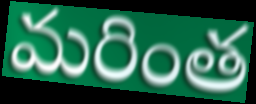
మరింత